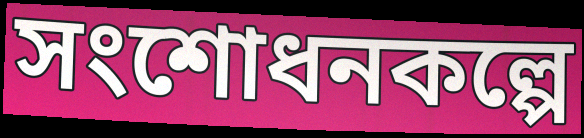
সংশোধনকল্পে